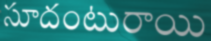
సూదంటురాయి